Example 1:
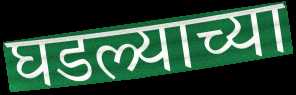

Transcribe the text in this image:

घडल्याच्या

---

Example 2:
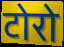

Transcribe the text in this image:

टोरो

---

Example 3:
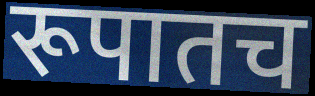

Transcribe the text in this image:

रूपातच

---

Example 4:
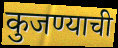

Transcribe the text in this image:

कुजण्याची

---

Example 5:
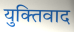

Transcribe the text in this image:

युक्‍तिवाद